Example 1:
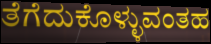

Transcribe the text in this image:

ತೆಗೆದುಕೊಳ್ಳುವಂತಹ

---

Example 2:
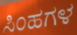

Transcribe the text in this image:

ಸಿಂಹಗಳ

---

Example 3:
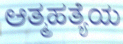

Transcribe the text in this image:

ಆತ್ಮಹತ್ಯೆಯ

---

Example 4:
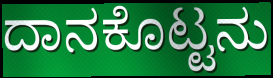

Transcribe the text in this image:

ದಾನಕೊಟ್ಟನು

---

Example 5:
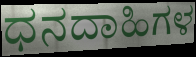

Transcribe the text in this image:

ಧನದಾಹಿಗಳ